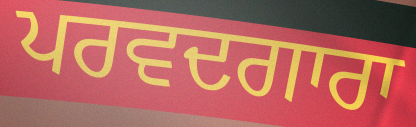
ਪਰਵਦਗਾਰਾ